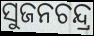
ସୁଜନଚନ୍ଦ୍ର